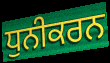
ਧੁਨੀਕਰਨ